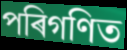
পৰিগণিত